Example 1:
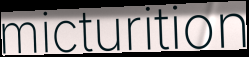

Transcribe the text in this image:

micturition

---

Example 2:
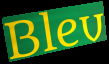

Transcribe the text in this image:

Bleu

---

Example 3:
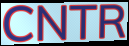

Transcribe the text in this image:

CNTR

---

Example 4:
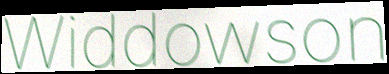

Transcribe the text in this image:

Widdowson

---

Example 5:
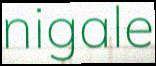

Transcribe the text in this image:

nigale